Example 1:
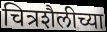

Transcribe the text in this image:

चित्रशैलीच्या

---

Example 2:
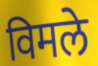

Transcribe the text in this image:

विमले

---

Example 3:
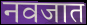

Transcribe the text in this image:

नवजात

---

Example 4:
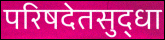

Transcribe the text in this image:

परिषदेतसुद्धा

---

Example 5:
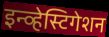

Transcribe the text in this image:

इन्व्हेस्टिगेशन